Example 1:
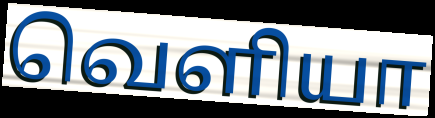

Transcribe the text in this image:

வெளியா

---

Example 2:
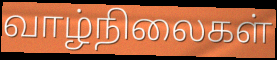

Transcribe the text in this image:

வாழ்நிலைகள்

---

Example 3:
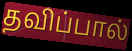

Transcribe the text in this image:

தவிப்பால்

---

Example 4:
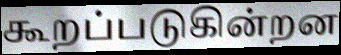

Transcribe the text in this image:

கூறப்படுகின்றன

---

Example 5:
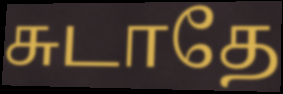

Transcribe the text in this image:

சுடாதே